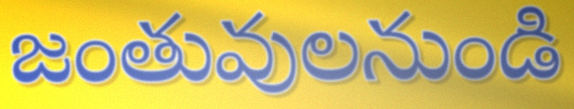
జంతువులనుండి